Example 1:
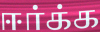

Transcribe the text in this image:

ஈர்க்க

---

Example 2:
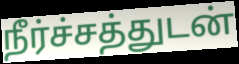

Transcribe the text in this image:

நீர்ச்சத்துடன்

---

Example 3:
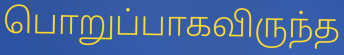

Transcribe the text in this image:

பொறுப்பாகவிருந்த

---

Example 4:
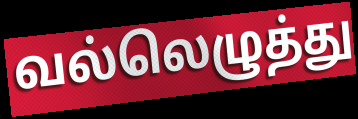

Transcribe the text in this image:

வல்லெழுத்து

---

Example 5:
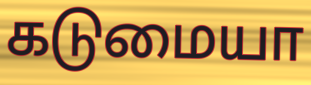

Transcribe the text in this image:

கடுமையா